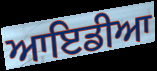
ਆਇਡੀਆ